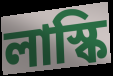
লাস্কি